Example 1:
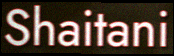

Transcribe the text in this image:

Shaitani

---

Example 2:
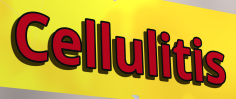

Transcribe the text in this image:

Cellulitis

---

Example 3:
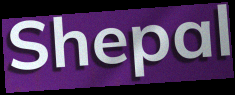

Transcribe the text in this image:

Shepal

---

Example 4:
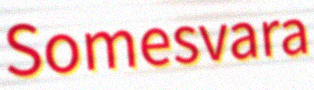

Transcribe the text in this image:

Somesvara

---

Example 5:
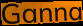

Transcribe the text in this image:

Ganna